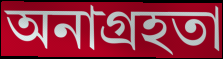
অনাগ্রহতা